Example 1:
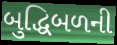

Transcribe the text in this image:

બુદ્ધિબળની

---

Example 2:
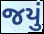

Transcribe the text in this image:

જયું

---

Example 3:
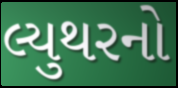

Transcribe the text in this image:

લ્યુથરનો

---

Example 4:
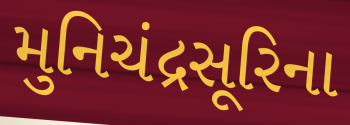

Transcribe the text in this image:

મુનિચંદ્રસૂરિના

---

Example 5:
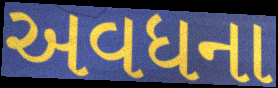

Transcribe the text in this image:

અવધના